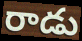
రాడు